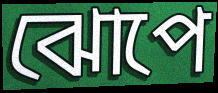
ঝোপে